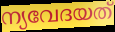
ന്യവേദയത്